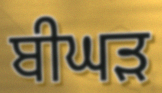
ਬੀਘੜ